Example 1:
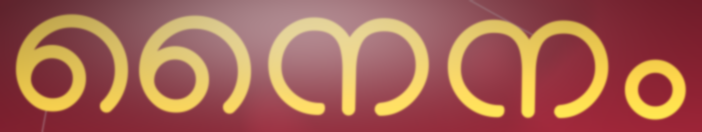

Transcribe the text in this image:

നൈനം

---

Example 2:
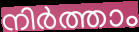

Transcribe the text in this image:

നിർത്താം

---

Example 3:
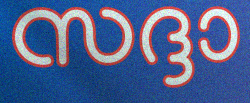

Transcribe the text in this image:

സദ്ദാ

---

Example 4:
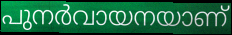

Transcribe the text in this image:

പുനർവായനയാണ്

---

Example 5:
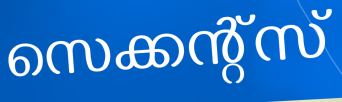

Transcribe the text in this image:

സെക്കന്റ്സ്